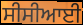
ਸੀਸੀਆਈ